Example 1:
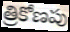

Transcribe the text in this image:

త్రికోణపు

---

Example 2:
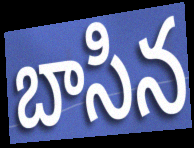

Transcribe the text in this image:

బాసిన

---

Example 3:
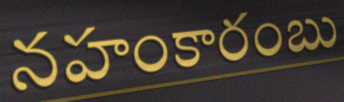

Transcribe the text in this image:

నహంకారంబు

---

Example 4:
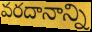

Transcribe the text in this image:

వరదానాన్ని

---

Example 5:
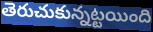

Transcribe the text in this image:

తెరుచుకున్నట్టయింది